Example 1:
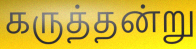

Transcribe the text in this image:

கருத்தன்று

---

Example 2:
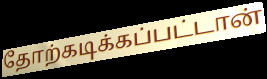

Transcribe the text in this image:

தோற்கடிக்கப்பட்டான்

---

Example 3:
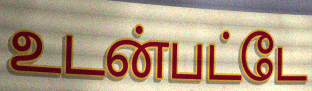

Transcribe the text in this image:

உடன்பட்டே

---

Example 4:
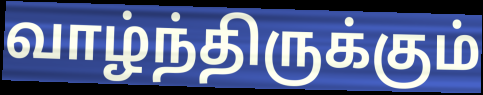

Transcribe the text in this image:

வாழ்ந்திருக்கும்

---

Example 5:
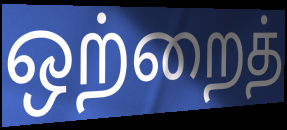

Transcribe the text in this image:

ஒற்றைத்